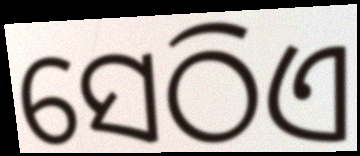
ସେଠିଏ